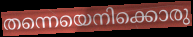
തന്നെയെനിക്കൊരു